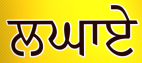
ਲਘਾਏ